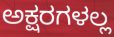
ಅಕ್ಷರಗಳಲ್ಲ